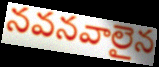
నవనవాలైన